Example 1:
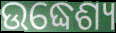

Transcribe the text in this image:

ଉଦ୍ଧେଶ୍ୟ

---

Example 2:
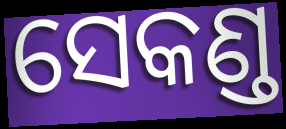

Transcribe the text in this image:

ସେକଣ୍ଡ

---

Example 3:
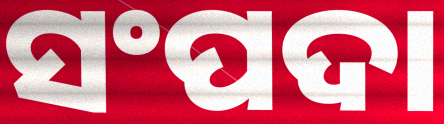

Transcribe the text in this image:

ସଂପଦା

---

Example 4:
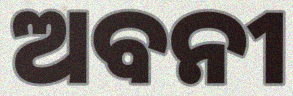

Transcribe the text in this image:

ଅବନୀ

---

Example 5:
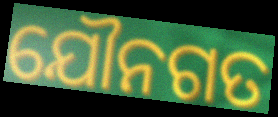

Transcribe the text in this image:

ଯୌନଗତ